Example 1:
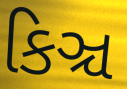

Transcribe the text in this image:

કિઞ્ચ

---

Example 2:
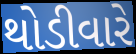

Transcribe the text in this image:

થોડીવારે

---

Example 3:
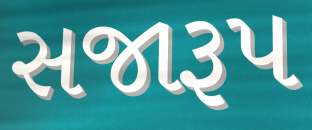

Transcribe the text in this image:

સજારૂપ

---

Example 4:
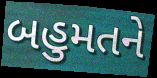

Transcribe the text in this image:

બહુમતને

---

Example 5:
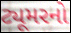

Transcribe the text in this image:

ટ્યૂમરનો